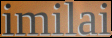
imilai